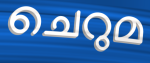
ചെറുമ